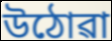
উঠোৱা